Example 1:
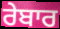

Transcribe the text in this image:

ਰੇਬਾਰ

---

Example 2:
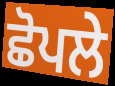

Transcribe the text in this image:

ਛੋਪਲੇ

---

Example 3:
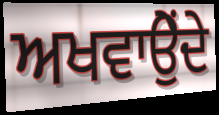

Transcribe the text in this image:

ਅਖਵਾਉੇਂਦੇ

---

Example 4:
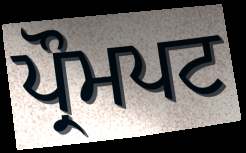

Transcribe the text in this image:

ਪ੍ਰੌਮਪਟ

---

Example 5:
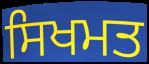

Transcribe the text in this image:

ਸਿਖਮਤ